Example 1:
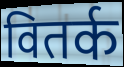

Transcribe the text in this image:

वितर्क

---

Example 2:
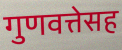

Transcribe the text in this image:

गुणवत्तेसह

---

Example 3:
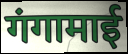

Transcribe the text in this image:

गंगामाई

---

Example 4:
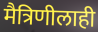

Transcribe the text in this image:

मैत्रिणीलाही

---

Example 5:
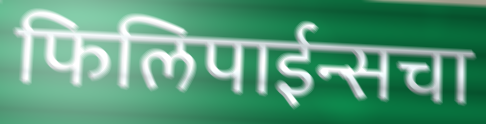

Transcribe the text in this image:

फिलिपाईन्सचा